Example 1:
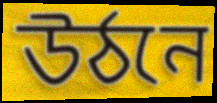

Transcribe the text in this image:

উঠনে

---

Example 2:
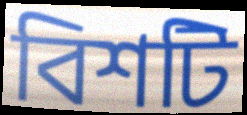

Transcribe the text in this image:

বিশটি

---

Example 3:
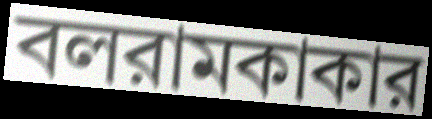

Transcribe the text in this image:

বলরামকাকার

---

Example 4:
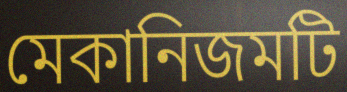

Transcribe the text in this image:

মেকানিজমটি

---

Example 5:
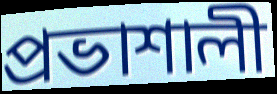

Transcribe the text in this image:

প্রভাশালী